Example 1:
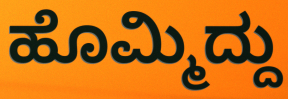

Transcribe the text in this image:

ಹೊಮ್ಮಿದ್ದು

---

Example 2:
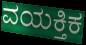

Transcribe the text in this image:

ವಯಕ್ತಿಕ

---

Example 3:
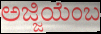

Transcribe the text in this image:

ಅಜ್ಜಿಯೆಂಬ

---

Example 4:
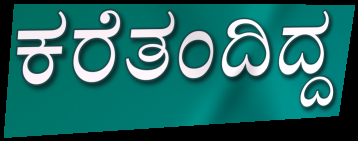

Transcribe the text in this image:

ಕರೆತಂದಿದ್ದ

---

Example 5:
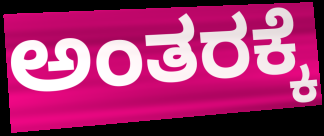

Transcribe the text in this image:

ಅಂತರಕ್ಕೆ